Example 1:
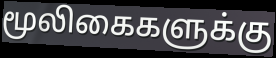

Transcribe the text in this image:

மூலிகைகளுக்கு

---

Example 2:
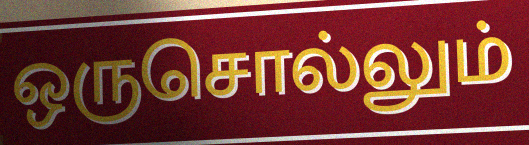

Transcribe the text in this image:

ஒருசொல்லும்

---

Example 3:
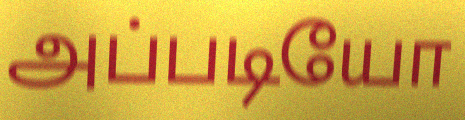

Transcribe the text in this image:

அப்படியோ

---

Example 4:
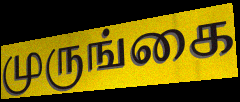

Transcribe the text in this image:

முருங்கை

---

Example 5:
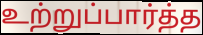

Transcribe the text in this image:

உற்றுப்பார்த்த